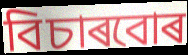
বিচাৰবোৰ